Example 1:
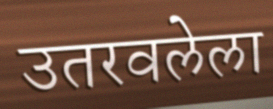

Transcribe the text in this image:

उतरवलेला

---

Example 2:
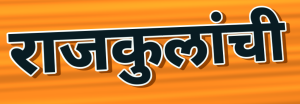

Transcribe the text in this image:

राजकुलांची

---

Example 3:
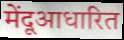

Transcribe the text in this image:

मेंदूआधारित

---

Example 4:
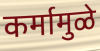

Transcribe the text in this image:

कर्मामुळे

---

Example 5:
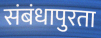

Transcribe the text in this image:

संबंधापुरता